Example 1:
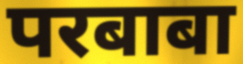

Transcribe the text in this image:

परबाबा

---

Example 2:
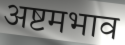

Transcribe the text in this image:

अष्टमभाव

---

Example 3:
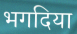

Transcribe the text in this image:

भगदिया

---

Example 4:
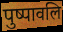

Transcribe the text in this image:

पुष्पावलि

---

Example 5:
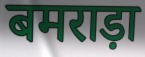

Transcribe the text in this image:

बमराड़ा